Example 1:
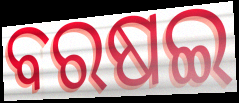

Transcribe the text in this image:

ବରଷଇ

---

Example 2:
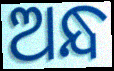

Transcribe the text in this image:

ଅନ୍ଧ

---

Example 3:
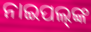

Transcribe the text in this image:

ନାଇପଲ୍‍ଙ୍କ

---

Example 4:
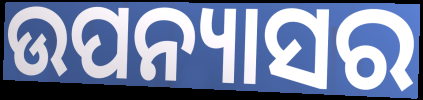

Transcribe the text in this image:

ଉପନ୍ୟାସର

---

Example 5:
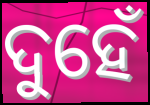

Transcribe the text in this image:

ଦୁହେଁ